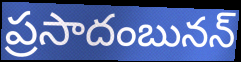
ప్రసాదంబునన్